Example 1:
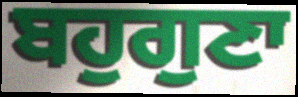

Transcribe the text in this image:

ਬਹੁਗੁਣਾ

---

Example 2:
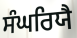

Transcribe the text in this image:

ਸੰਘਰਿਯੈ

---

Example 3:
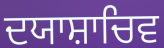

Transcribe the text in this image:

ਦਯਾਸ਼ਾਚਿਵ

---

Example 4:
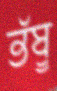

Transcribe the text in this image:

ਭੱਬੂ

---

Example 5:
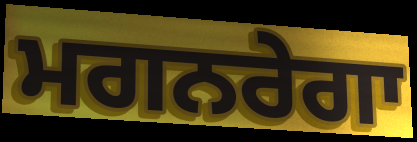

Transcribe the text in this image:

ਮਗਨਰੇਗਾ